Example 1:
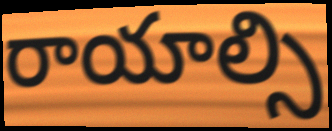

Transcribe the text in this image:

రాయాల్సి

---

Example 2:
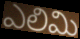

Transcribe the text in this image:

ఎలిమి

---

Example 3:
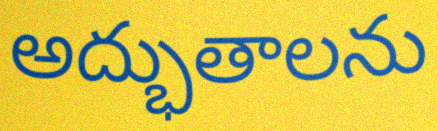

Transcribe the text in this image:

అద్భుతాలను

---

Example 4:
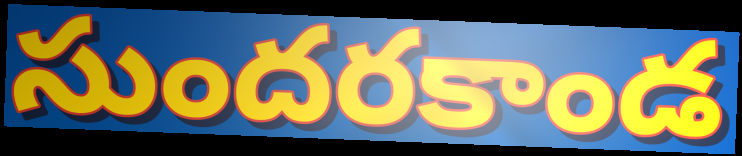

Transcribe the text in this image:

సుందరకాండ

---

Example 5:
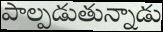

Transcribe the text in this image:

పాల్పడుతున్నాడు